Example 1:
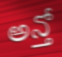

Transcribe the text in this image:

అన్తో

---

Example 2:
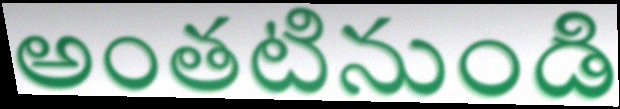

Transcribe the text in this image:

అంతటినుండి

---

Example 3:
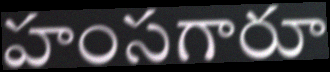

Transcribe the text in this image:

హంసగారూ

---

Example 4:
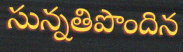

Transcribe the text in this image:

సున్నతిపొందిన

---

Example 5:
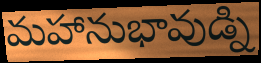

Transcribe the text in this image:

మహానుభావుడ్ని